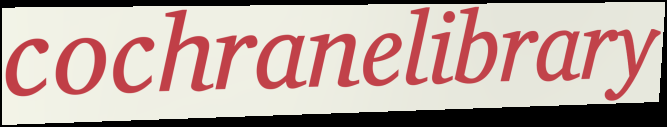
cochranelibrary